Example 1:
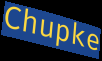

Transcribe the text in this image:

Chupke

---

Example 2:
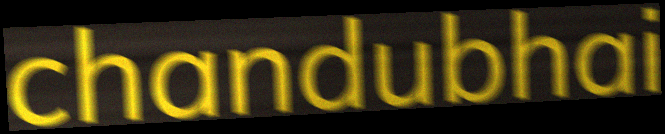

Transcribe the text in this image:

chandubhai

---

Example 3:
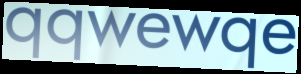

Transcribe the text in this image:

qqwewqe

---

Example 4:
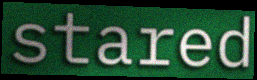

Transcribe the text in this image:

stared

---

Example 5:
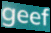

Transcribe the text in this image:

geef